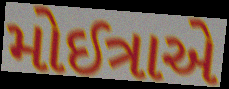
મોઈત્રાએ